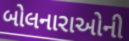
બોલનારાઓની